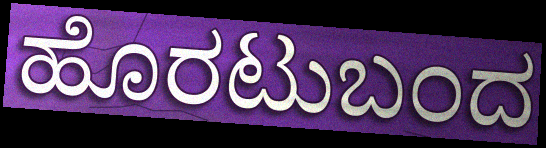
ಹೊರಟುಬಂದ